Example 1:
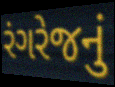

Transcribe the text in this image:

રંગરેજનું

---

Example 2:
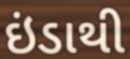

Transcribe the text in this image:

ઇંડાથી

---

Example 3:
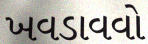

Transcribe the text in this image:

ખવડાવવો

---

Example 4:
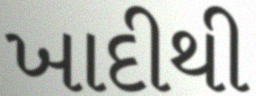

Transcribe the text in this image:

ખાદીથી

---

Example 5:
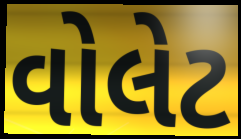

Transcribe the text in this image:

વોલેટ